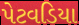
પેટવડિયા